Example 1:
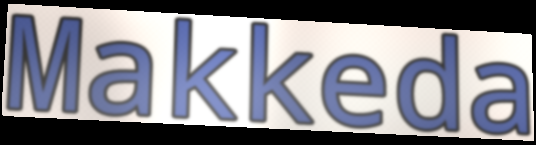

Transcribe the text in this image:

Makkeda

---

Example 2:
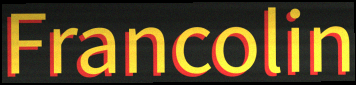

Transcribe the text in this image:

Francolin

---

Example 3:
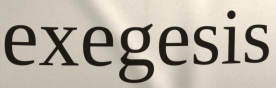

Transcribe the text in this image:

exegesis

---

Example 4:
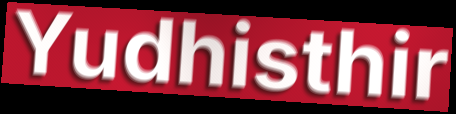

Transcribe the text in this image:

Yudhisthir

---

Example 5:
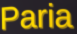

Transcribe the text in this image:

Paria